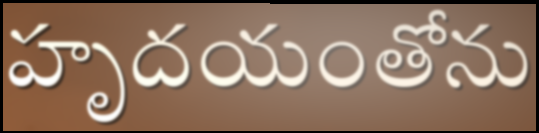
హృదయంతోను